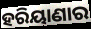
ହରିୟାଣାର